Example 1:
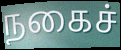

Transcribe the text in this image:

நகைச்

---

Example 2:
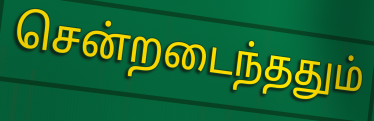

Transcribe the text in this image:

சென்றடைந்ததும்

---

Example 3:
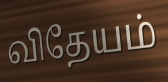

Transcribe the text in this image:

விதேயம்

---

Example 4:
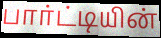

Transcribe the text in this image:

பார்ட்டியின்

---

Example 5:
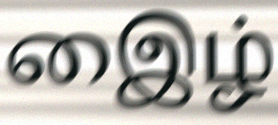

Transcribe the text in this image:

இைழ்